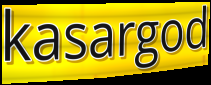
kasargod